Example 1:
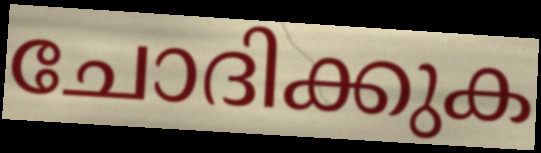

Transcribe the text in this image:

ചോദിക്കുക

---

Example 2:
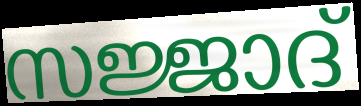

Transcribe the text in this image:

സജ്ജാദ്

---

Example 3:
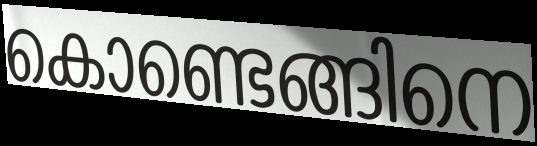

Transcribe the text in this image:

കൊണ്ടെങ്ങിനെ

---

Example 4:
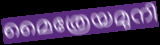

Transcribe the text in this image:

മൈത്രേയമുനി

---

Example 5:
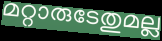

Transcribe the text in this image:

മറ്റാരുടേതുമല്ല